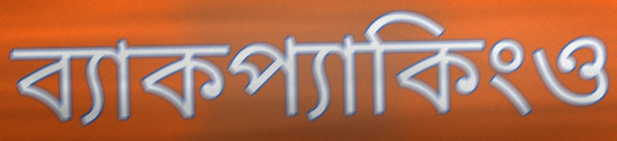
ব্যাকপ্যাকিংও